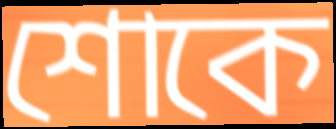
শোকে